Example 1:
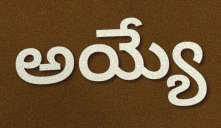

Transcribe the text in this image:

అయ్యే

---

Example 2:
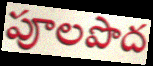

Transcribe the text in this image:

పూలపొద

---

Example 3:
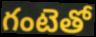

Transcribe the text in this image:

గంటెతో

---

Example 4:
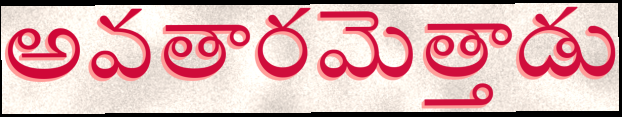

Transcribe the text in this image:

అవతారమెత్తాడు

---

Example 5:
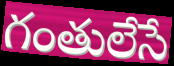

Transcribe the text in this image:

గంతులేసే